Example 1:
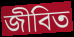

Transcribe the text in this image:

জীবিত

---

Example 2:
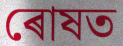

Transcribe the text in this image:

ৰোষত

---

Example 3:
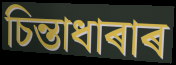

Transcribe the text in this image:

চিন্তাধাৰাৰ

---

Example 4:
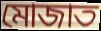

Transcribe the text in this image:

মোজাত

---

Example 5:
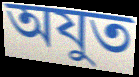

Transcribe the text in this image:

অযুত